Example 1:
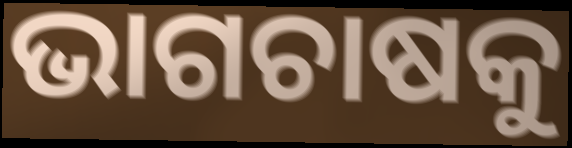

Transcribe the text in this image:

ଭାଗଚାଷକୁ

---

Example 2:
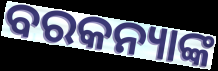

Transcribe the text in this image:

ବରକନ୍ୟାଙ୍କ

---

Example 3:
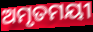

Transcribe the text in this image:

ଅମୃତମୟୀ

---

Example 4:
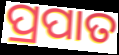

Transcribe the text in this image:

ପ୍ରପାତ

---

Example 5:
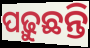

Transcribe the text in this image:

ପଢ଼ୁଛନ୍ତି